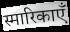
स्मारिकाएँ